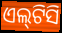
ଏଲ୍‌ଟିସି